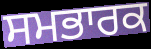
ਸਮਭਾਰਕ